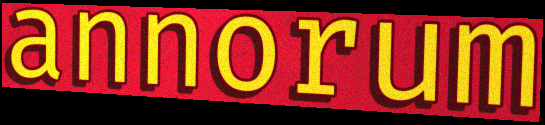
annorum